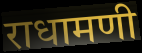
राधामणी